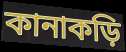
কানাকড়ি